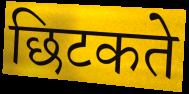
छिटकते